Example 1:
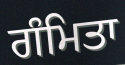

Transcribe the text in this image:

ਗੰਮਿਤਾ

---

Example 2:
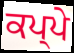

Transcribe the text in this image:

ਕਪ੍ਪੇ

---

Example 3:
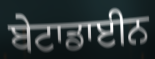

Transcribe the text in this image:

ਬੇਟਾਡਾਈਨ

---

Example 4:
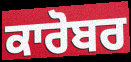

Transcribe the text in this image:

ਕਾਰੋਬਰ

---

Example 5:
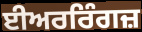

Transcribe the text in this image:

ਈਅਰਰਿੰਗਜ਼